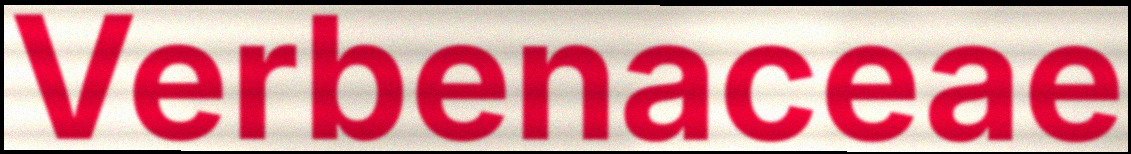
Verbenaceae